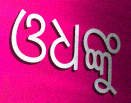
ଓଧଙ୍କୁ